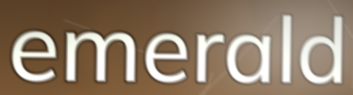
emerald